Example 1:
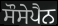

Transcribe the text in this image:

ਸੌਸੇਪੈਨ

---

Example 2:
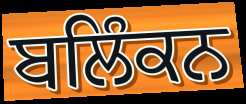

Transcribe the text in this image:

ਬਲਿੰਕਨ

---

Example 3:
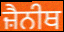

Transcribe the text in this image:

ਜ਼ੈਨੀਥ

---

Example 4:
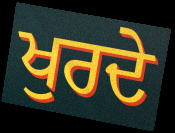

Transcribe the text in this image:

ਖੁਰਦੇ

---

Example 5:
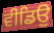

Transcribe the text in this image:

ਵੀਡਿਉ